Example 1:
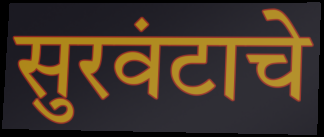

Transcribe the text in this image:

सुरवंटाचे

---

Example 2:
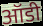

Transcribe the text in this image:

ऑडी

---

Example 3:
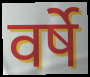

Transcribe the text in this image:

वर्षे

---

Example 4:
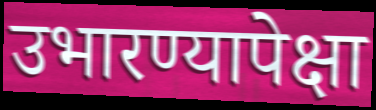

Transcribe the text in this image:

उभारण्यापेक्षा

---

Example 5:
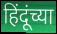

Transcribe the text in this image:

हिंदूंच्या